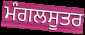
ਮੰਗਲਸੂਤਰ